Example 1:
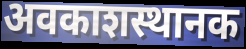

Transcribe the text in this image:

अवकाशस्थानक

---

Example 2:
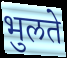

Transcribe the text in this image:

भुलते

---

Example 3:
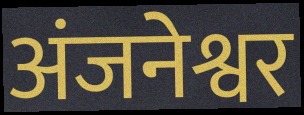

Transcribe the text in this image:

अंजनेश्वर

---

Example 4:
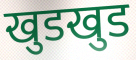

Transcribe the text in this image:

खुडखुड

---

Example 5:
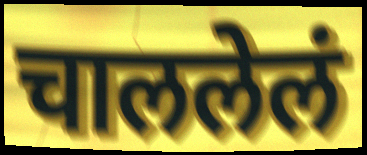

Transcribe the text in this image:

चाललेलं